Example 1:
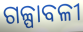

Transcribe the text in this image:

ଗଳ୍ପାବଳୀ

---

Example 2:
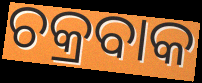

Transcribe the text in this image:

ଚକ୍ରବାକ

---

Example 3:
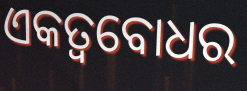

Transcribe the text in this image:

ଏକତ୍ୱବୋଧର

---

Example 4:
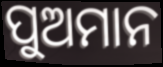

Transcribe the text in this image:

ପୁଅମାନ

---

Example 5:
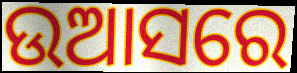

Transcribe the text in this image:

ଉଆସରେ